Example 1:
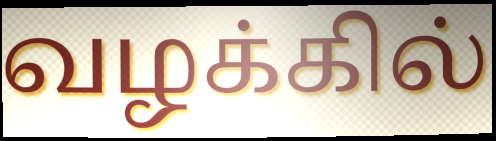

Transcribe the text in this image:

வழக்கில்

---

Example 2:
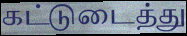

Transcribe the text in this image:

கட்டுடைத்து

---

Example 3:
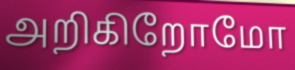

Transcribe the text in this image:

அறிகிறோமோ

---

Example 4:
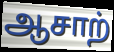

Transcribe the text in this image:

ஆசாற்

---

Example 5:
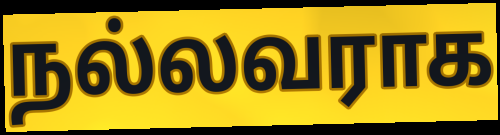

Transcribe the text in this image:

நல்லவராக